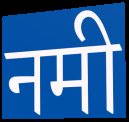
नमी